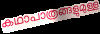
കഥാപാത്രങ്ങളുമുള്ള